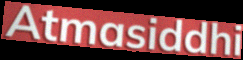
Atmasiddhi